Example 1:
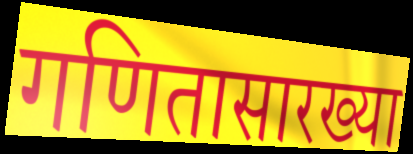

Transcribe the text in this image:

गणितासारख्या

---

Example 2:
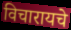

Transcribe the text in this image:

विचारायचे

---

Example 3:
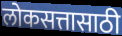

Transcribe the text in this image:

लोकसत्तासाठी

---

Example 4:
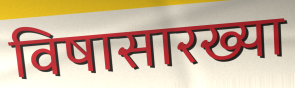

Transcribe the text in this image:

विषासारख्या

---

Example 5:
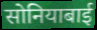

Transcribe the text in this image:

सोनियाबाई